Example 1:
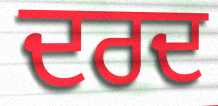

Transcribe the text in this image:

ਦਰਦ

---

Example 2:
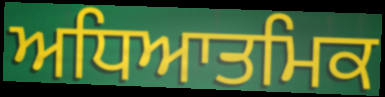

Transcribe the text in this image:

ਅਧਿਆਤਮਿਕ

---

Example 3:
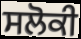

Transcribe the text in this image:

ਸਲੋਕੀ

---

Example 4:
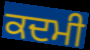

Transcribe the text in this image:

ਕਦਮੀ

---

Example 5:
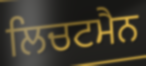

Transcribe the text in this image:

ਲਿਚਟਮੈਨ